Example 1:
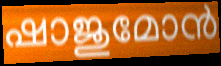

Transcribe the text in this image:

ഷാജുമോൻ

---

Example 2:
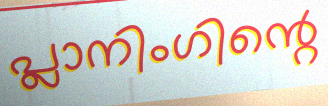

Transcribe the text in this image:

പ്ലാനിംഗിന്റെ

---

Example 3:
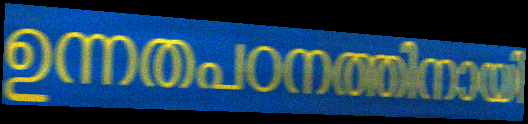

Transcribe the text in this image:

ഉന്നതപഠനത്തിനായി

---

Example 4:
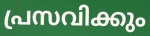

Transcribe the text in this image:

പ്രസവിക്കും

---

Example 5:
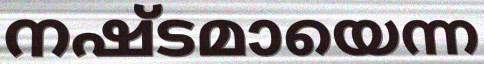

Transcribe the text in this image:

നഷ്ടമായെന്ന